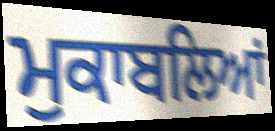
ਮੁਕਾਬਲਿਆਂ